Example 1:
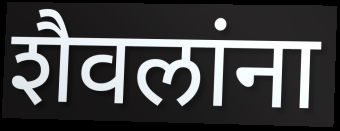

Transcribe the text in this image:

शैवलांना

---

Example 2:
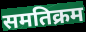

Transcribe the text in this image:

समतिक्रम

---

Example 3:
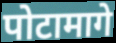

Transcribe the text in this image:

पोटामागे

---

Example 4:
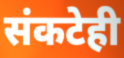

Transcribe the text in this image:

संकटेही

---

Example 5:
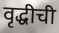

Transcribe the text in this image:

वृद्धीची